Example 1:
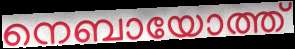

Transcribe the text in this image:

നെബായോത്ത്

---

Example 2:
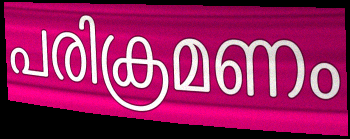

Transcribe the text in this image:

പരിക്രമണം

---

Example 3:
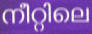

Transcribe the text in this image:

നീറ്റിലെ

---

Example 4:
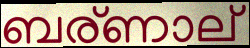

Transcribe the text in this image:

ബര്ണാല്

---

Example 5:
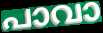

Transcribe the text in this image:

പാവാ